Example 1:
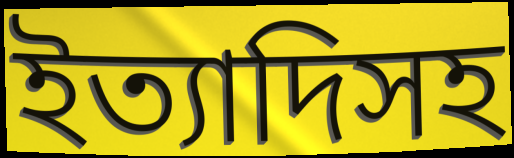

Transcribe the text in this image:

ইত্যাদিসহ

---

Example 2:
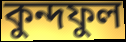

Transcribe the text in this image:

কুন্দফুল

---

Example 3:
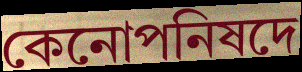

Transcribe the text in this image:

কেনোপনিষদে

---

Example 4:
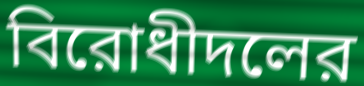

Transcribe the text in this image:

বিরোধীদলের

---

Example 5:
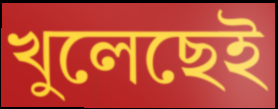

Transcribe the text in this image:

খুলেছেই